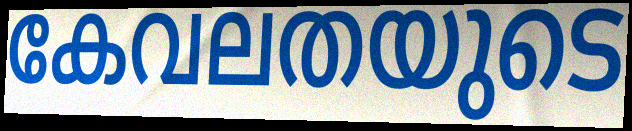
കേവലതയുടെ